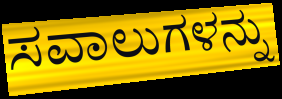
ಸವಾಲುಗಳನ್ನು